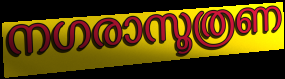
നഗരാസൂത്രണ